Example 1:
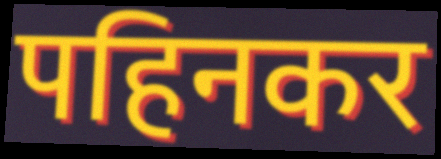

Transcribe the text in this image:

पहिनकर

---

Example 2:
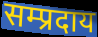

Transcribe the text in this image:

सम्प्रदाय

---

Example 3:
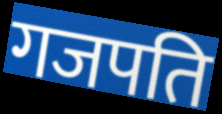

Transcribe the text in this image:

गजपति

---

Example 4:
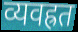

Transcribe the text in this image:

व्यवह्रत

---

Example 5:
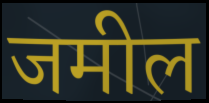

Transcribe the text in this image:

जमील